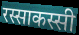
रस्साकस्सी